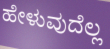
ಹೇಳುವುದೆಲ್ಲ